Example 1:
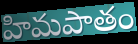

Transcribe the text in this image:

హిమపాతం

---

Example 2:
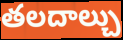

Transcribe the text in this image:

తలదాల్చు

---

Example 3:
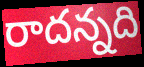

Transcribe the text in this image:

రాదన్నది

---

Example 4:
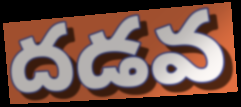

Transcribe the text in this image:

దడవ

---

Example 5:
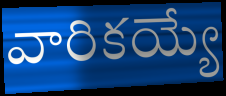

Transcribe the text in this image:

వారికయ్యే